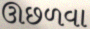
ઊછળવા